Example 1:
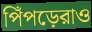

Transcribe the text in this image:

পিঁপড়েরাও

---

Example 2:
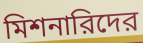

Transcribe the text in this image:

মিশনারিদের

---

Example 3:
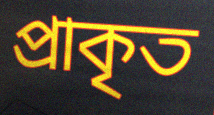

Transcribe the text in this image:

প্রাকৃত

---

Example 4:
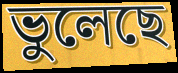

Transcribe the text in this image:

ভুলেছে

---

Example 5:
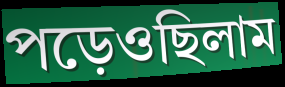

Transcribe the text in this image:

পড়েওছিলাম